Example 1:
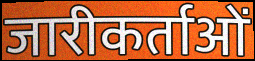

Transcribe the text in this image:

जारीकर्ताओं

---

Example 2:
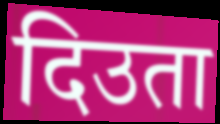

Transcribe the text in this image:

दिउता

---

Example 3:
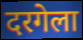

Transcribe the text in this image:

दरगेला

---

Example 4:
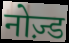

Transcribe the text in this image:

नोज़्ड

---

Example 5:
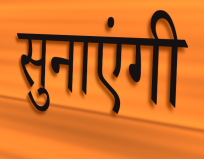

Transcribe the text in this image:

सुनाएंगी